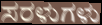
ಸರಳುಗಳು